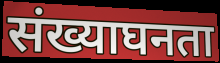
संख्याघनता